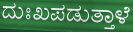
ದುಃಖಪಡುತ್ತಾಳೆ